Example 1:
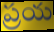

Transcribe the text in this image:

ప్రయ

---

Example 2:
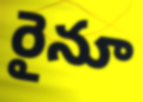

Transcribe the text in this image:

రైనూ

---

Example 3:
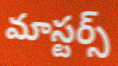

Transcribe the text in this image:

మాస్టర్స్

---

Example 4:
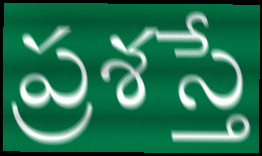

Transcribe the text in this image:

ప్రశస్తే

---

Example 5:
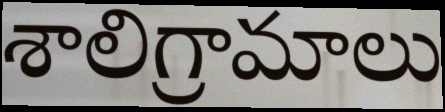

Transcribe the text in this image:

శాలిగ్రామాలు